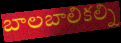
బాలబాలికల్ని